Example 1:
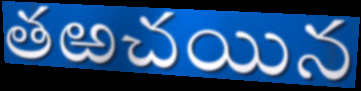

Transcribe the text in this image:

తఱచయిన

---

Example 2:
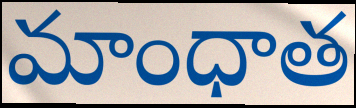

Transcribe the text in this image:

మాంధాత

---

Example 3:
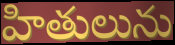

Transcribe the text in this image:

హితులును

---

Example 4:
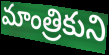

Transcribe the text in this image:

మాంత్రికుని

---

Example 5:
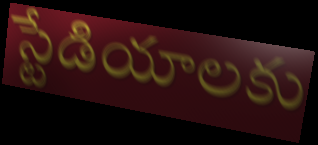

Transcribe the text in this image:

స్టేడియాలకు